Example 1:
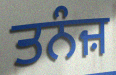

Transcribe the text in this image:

ਤਨੰਜ਼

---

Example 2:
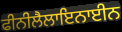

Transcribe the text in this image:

ਫੀਨੀਲੈਲਾਇਨਾਈਨ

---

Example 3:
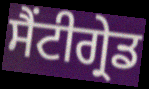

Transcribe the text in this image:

ਸੈਂਟੀਗ੍ਰੇਡ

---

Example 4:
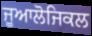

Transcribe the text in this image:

ਜੂਆਲੋਜਿਕਲ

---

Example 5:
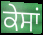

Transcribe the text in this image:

ਕੇਸਾਂ